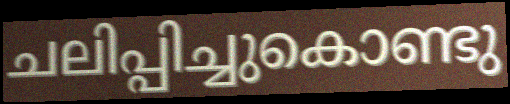
ചലിപ്പിച്ചുകൊണ്ടു